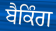
ਬੈਕਿੰਗ